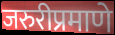
जरुरीप्रमाणे